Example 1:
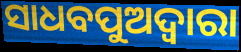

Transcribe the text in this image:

ସାଧବପୁଅଦ୍ୱାରା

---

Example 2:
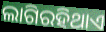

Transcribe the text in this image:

ଲାଗିରହିଥାଏ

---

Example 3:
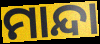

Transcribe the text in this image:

ମାନ୍ଦା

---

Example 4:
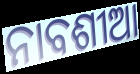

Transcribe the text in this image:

ନାବଶୀଆ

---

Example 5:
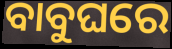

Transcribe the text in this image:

ବାବୁଘରେ